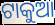
ଟାକୁଆ